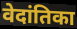
वेदांतिका